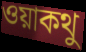
ওয়াকথু